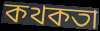
কথকতা